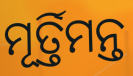
ମୂର୍ତ୍ତିମନ୍ତ